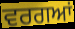
ਵਰਗਆਂ